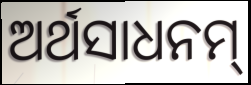
ଅର୍ଥସାଧନମ୍